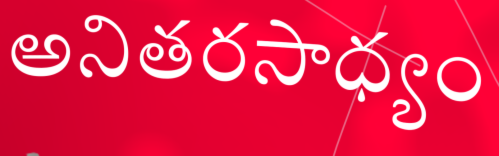
అనితరసాధ్యం